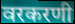
वरकरणी